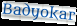
Badyokar